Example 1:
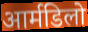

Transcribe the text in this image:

आर्मडिलो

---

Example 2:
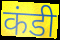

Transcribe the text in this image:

कंडी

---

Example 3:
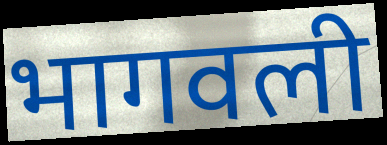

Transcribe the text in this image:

भागवली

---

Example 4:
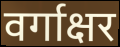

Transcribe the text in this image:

वर्गाक्षर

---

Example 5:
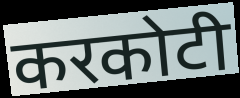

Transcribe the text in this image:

करकोटी